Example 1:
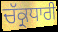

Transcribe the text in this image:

ਚੱਕ੍ਰਧਾਰੀ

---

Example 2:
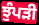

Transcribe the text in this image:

ਝੁੰਪੜੀ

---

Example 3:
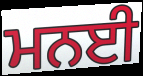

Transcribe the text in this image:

ਮਨਈ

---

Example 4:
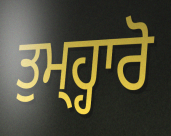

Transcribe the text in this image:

ਤੁਮ੍ਹ੍ਹਾਰੋ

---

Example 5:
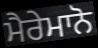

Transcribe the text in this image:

ਮੈਰੇਮਾਨੋ